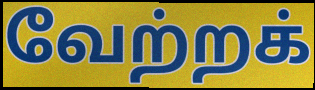
வேற்றக்